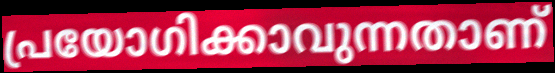
പ്രയോഗിക്കാവുന്നതാണ്